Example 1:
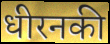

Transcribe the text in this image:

धीरनकी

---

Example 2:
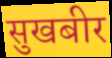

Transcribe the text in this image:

सुखबीर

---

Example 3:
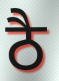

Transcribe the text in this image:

ठै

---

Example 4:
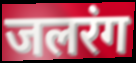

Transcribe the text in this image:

जलरंग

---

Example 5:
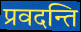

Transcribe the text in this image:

प्रवदन्ति